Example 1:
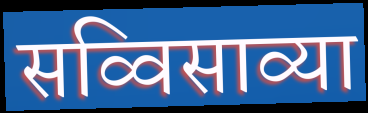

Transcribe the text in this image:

सव्विसाव्या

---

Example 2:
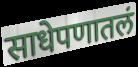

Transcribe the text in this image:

साधेपणातलं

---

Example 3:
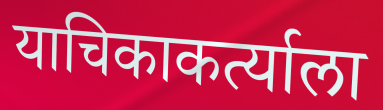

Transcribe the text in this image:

याचिकाकर्त्याला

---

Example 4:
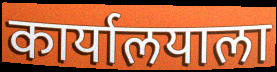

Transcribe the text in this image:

कार्यालयाला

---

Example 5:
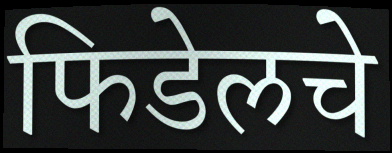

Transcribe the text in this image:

फिडेलचे